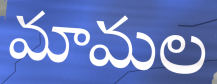
మామల